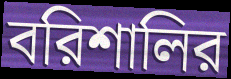
বরিশালির